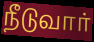
நீடுவார்